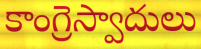
కాంగ్రెస్వాదులు